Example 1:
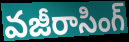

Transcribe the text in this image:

వజీరాసింగ్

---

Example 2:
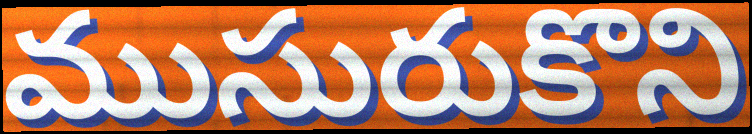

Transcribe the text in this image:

ముసురుకొని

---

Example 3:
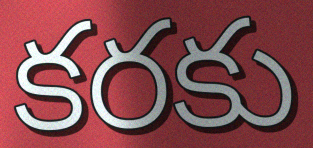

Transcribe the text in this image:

కరకు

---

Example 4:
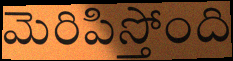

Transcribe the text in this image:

మెరిపిస్తోంది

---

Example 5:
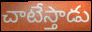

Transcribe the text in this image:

చాటేస్తాడు